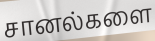
சானல்களை